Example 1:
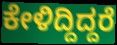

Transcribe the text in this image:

ಕೇಳಿದ್ದಿದ್ದರೆ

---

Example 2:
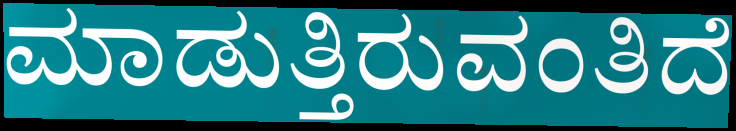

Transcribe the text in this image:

ಮಾಡುತ್ತಿರುವಂತಿದೆ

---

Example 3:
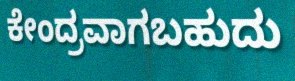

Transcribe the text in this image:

ಕೇಂದ್ರವಾಗಬಹುದು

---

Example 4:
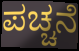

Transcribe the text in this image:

ಪಚ್ಚನೆ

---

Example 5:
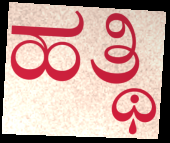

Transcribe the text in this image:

ಹತ್ಥಿ